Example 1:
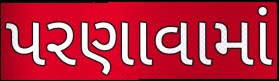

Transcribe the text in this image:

પરણાવામાં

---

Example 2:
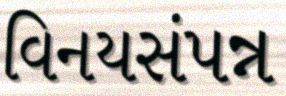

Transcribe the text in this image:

વિનયસંપન્ન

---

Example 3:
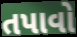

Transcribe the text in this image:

તપાવો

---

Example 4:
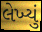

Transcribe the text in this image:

લેખ્યું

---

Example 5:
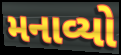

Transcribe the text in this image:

મનાવ્યો